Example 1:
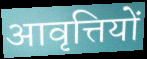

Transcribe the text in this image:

आवृत्तियों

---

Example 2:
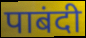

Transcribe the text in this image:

पाबंदी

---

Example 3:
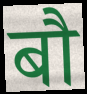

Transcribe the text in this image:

बौ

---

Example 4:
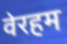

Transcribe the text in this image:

वेरहम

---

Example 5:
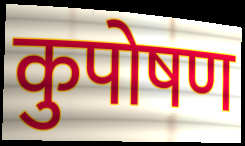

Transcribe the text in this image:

कुपोषण